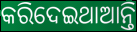
କରିଦେଇଥାଆନ୍ତି